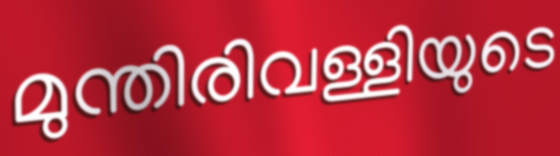
മുന്തിരിവള്ളിയുടെ